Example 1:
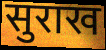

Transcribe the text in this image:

सुराख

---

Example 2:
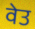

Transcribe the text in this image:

वेउ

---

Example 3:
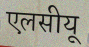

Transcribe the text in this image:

एलसीयू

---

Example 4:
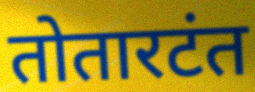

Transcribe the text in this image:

तोतारटंत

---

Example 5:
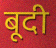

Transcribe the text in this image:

बूदी